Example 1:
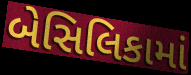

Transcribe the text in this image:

બેસિલિકામાં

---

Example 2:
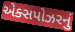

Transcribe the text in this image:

એક્સપોઝરનું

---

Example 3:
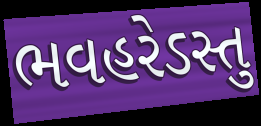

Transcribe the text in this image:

ભવહરેઽસ્તુ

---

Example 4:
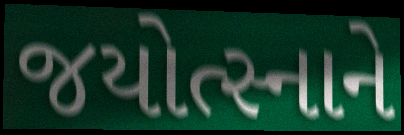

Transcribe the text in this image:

જયોત્સ્નાને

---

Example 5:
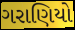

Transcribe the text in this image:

ગરાણિયો